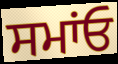
ਸਮਾਂਓ